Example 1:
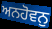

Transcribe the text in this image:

ਅਨਹੋਵਨੁ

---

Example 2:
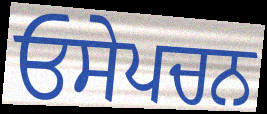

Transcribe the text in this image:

ਓਸੇਪਚਨ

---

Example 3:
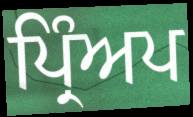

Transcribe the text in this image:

ਪ੍ਰਿੰਅਪ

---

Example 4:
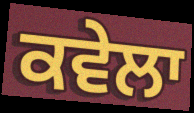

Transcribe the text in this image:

ਕਵੇਲਾ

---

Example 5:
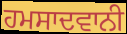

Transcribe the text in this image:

ਹਮਸਾਦਵਾਨੀ